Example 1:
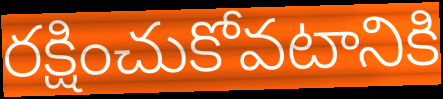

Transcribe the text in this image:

రక్షించుకోవటానికి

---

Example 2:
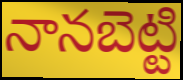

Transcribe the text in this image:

నానబెట్టి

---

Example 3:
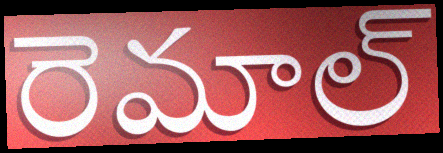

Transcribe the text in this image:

రెమాల్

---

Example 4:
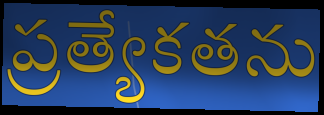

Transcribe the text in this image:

ప్రత్యేకతను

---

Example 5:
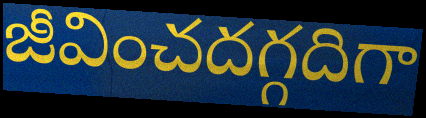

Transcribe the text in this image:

జీవించదగ్గదిగా